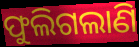
ଫୁଲିଗଲାଣି